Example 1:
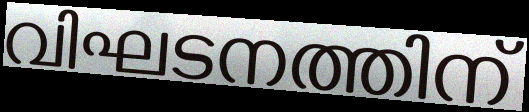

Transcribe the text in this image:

വിഘടനത്തിന്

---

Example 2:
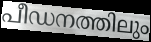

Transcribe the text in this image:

പീഡനത്തിലും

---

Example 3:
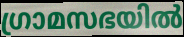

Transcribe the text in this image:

ഗ്രാമസഭയിൽ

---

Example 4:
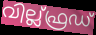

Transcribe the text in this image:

വില്ല്ഫ്രഡ്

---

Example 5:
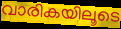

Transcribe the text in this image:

വാരികയിലൂടെ